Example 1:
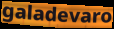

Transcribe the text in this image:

galadevaro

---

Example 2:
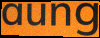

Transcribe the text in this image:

aung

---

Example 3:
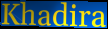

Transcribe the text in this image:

Khadira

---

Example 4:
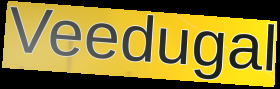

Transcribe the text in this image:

Veedugal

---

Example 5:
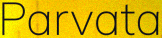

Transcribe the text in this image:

Parvata